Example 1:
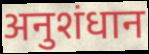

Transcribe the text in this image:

अनुशंधान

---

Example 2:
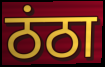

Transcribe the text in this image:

ठंठा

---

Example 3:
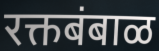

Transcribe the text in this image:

रक्तबंबाळ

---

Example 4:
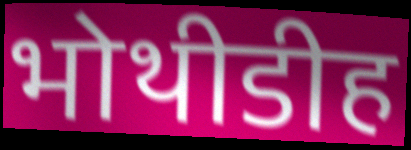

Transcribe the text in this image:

भोथीडीह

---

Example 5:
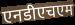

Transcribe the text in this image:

एनडीएचएम